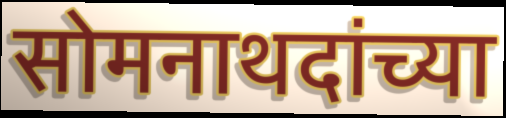
सोमनाथदांच्या